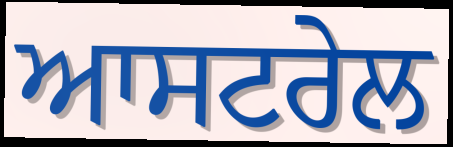
ਆਸਟਰੇਲ